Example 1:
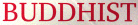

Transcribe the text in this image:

BUDDHIST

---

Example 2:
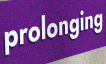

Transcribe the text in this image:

prolonging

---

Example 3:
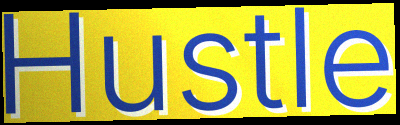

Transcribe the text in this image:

Hustle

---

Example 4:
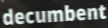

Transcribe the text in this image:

decumbent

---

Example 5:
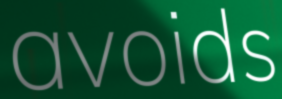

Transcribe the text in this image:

avoids